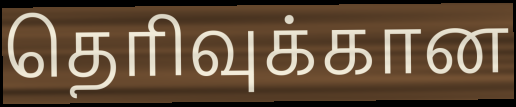
தெரிவுக்கான